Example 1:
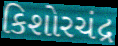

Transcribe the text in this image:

કિશોરચંદ્ર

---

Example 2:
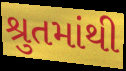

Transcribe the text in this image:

શ્રુતમાંથી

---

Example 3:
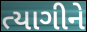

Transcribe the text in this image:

ત્યાગીને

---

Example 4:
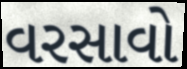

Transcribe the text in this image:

વરસાવો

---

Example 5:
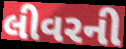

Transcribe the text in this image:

લીવરની